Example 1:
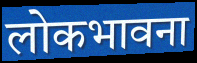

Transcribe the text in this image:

लोकभावना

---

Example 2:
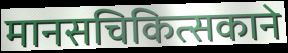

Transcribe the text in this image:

मानसचिकित्सकाने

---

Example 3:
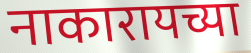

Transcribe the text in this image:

नाकारायच्या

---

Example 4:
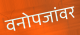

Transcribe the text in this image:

वनोपजांवर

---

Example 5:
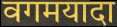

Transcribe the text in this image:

वगमयादा